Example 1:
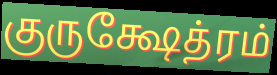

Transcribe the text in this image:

குருக்ஷேத்ரம்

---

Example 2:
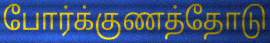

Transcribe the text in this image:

போர்க்குணத்தோடு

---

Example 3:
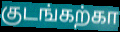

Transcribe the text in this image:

குடங்கற்கா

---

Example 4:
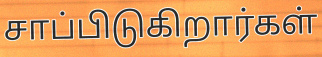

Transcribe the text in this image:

சாப்பிடுகிறார்கள்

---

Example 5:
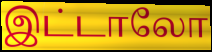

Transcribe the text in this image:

இட்டாலோ